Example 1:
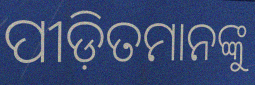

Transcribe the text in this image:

ପୀଡ଼ିତମାନଙ୍କୁ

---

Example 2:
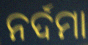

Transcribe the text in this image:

ନର୍ଦମା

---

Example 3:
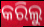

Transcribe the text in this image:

କରିଲୁ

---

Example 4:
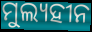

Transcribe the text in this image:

ମୁଲ୍ୟହୀନ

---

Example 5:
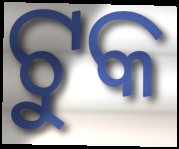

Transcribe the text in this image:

ଟୁକ